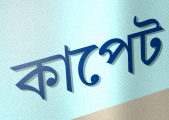
কাপেট